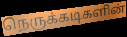
நெருக்கடிகளின்